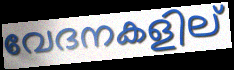
വേദനകളില്